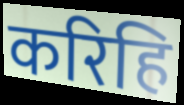
करिहि